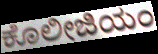
ಕೊಲೀಜಿಯಂ